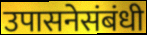
उपासनेसंबंधी